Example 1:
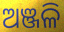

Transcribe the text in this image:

ଅଞ୍ଜଳି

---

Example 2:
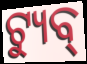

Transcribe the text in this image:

ଟ୍ୟୁବ୍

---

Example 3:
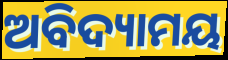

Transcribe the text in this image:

ଅବିଦ୍ୟାମୟ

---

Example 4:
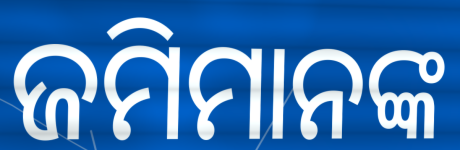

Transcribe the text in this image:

ଜମିମାନଙ୍କ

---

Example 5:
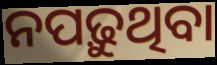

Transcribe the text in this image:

ନପଢ଼ୁଥିବା